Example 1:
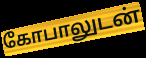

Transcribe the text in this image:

கோபாலுடன்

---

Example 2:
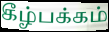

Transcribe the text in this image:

கீழ்பக்கம்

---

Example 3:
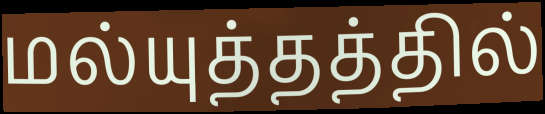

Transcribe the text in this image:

மல்யுத்தத்தில்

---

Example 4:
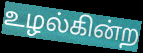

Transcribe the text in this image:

உழல்கின்ற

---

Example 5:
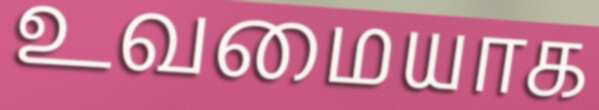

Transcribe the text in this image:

உவமையாக